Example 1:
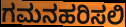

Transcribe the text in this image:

ಗಮನಹರಿಸಲಿ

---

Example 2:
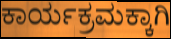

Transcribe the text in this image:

ಕಾರ್ಯಕ್ರಮಕ್ಕಾಗಿ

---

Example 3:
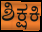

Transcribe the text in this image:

ಶಿಕ್ಷಕಿ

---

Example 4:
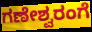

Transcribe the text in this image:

ಗಣೇಶ್ವರಂಗೆ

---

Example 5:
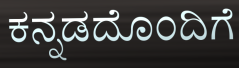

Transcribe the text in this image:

ಕನ್ನಡದೊಂದಿಗೆ